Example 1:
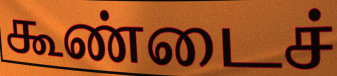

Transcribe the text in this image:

கூண்டைச்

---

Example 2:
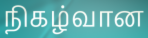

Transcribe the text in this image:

நிகழ்வான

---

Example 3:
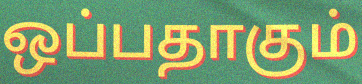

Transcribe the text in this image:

ஒப்பதாகும்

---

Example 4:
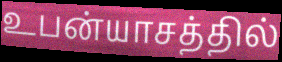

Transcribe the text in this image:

உபன்யாசத்தில்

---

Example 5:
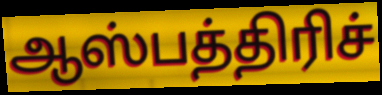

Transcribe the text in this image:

ஆஸ்பத்திரிச்